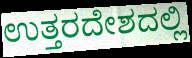
ಉತ್ತರದೇಶದಲ್ಲಿ